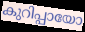
കുറിപ്പായോ